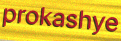
prokashye